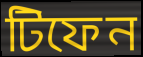
টিফেন